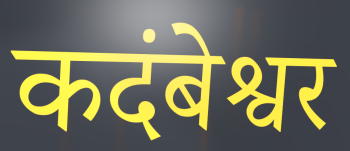
कदंबेश्वर